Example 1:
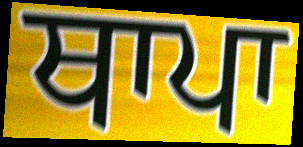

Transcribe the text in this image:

ਥਾਪਾ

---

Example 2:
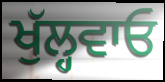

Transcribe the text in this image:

ਖੁੱਲ੍ਹਵਾਓ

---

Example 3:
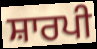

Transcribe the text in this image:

ਸ਼ਾਰਪੀ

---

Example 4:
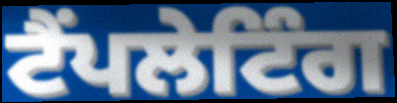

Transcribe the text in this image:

ਟੈਂਪਲੇਟਿੰਗ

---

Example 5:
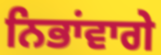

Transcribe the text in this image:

ਨਿਭਾਂਵਾਗੇ